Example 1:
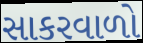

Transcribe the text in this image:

સાકરવાળો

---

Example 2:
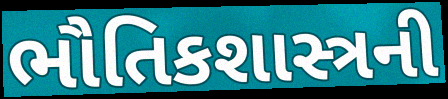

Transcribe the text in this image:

ભૌતિકશાસ્ત્રની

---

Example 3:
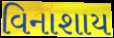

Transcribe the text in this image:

વિનાશાય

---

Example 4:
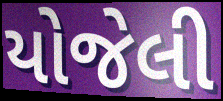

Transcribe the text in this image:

યોજેલી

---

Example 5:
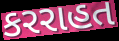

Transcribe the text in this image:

કરરાહત